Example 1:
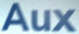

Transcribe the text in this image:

Aux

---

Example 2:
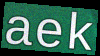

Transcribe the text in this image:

aek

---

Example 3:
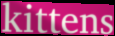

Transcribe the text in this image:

kittens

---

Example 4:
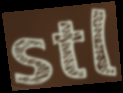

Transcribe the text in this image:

stl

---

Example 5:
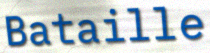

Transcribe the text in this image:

Bataille